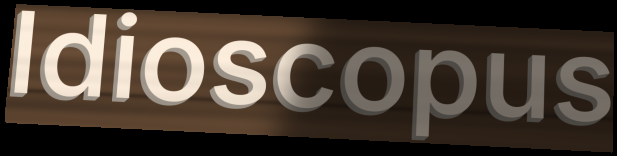
Idioscopus